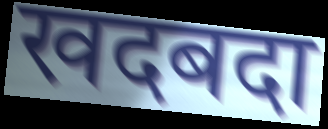
खदबदा